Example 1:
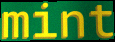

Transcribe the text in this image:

mint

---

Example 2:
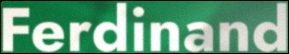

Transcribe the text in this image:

Ferdinand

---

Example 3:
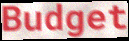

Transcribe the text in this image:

Budget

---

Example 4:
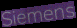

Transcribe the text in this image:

Siemens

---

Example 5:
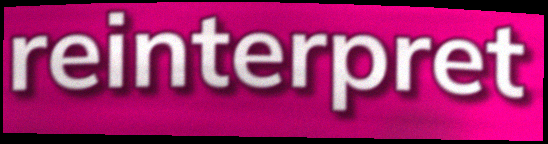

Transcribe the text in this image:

reinterpret